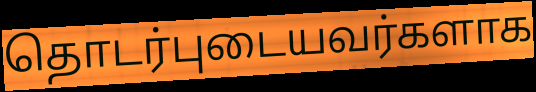
தொடர்புடையவர்களாக